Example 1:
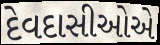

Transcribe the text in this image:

દેવદાસીઓએ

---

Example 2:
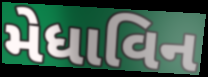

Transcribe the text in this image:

મેધાવિન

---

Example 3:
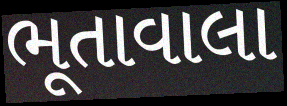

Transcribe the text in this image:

ભૂતાવાલા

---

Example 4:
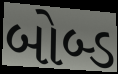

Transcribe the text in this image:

બોબ્ડ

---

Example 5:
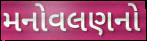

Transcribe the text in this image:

મનોવલણનો